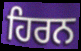
ਹਿਰਨ